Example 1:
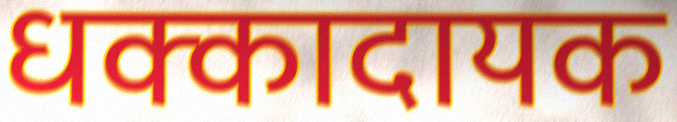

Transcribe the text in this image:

धक्‍कादायक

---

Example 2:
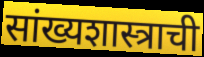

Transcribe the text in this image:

सांख्यशास्त्राची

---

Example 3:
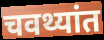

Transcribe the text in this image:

चवथ्यांत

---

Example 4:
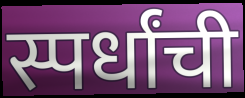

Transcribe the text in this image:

स्पर्धांची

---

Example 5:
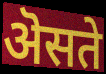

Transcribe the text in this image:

ऄसते